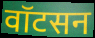
वॉटसन